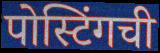
पोस्टिंगची